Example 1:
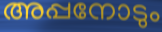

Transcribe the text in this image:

അപ്പനോടും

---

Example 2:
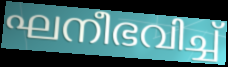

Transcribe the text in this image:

ഘനീഭവിച്ച്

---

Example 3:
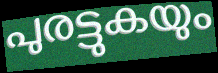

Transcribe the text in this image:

പുരട്ടുകയും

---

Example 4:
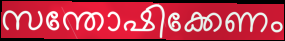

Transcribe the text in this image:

സന്തോഷിക്കേണം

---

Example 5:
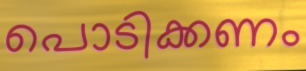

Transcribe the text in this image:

പൊടിക്കണം